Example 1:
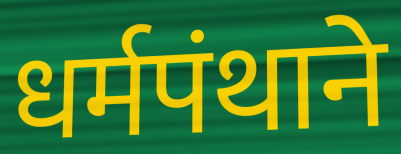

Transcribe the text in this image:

धर्मपंथाने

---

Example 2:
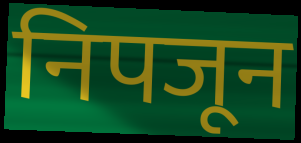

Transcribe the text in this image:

निपजून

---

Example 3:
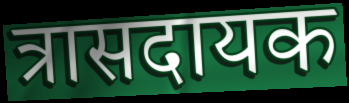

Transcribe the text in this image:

त्रासदायक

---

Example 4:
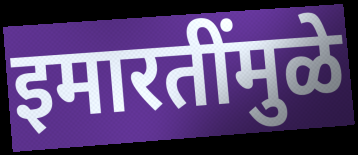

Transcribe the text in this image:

इमारतींमुळे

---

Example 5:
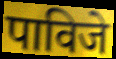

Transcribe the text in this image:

पाविजे